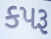
કપરૂ